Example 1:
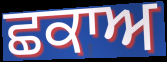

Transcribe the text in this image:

ਛਕਾਅ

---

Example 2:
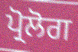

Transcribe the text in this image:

ਪ੍ਰੋਲੋਗ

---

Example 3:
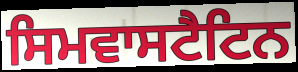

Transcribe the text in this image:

ਸਿਮਵਾਸਟੈਟਿਨ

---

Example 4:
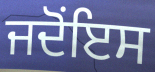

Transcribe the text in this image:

ਜਦੋਂਇਸ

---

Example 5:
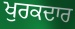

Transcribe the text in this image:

ਖੁਰਕਦਾਰ